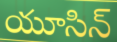
యూసిన్